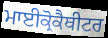
ਮਾਈਕ੍ਰੋਕੈਥੀਟਰ